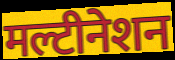
मल्टीनेशन